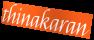
thinakaran